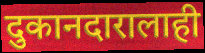
दुकानदारालाही